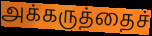
அக்கருத்தைச்